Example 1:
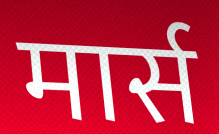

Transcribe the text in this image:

मार्स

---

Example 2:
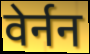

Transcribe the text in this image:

वेर्नन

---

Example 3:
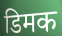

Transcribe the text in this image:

डिमक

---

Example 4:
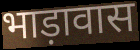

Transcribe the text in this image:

भाड़ावास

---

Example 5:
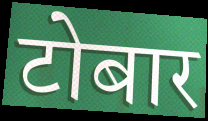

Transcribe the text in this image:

टोबार